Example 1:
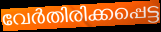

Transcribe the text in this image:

വേർതിരിക്കപ്പെട്ട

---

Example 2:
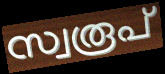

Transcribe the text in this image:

സ്വരൂപ്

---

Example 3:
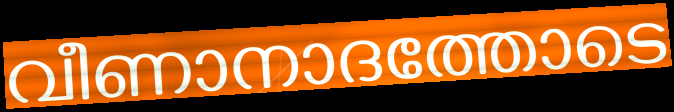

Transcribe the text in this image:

വീണാനാദത്തോടെ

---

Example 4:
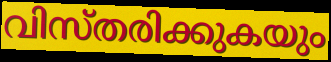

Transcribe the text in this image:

വിസ്തരിക്കുകയും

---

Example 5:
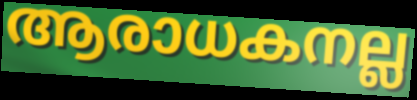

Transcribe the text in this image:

ആരാധകനല്ല